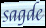
sagde